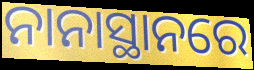
ନାନାସ୍ଥାନରେ